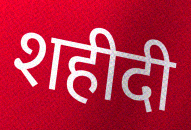
शहीदी